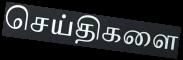
செய்திகளை